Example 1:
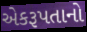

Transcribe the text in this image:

એકરૂપતાનો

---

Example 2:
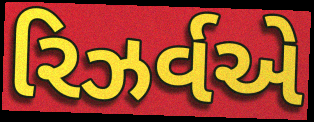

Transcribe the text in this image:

રિઝર્વએ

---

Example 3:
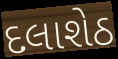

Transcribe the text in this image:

દલાશેઠ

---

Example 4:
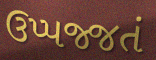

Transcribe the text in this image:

ઉપ્પજ્જતં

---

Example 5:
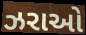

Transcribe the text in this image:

ઝરાઓ